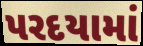
પરદયામાં